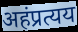
अहंप्रत्यय